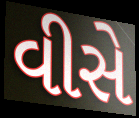
વીસે